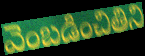
వెంబడించితిని